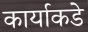
कार्याकडे